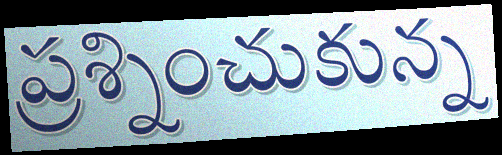
ప్రశ్నించుకున్న